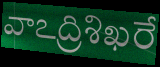
వాఽద్రిశిఖరే